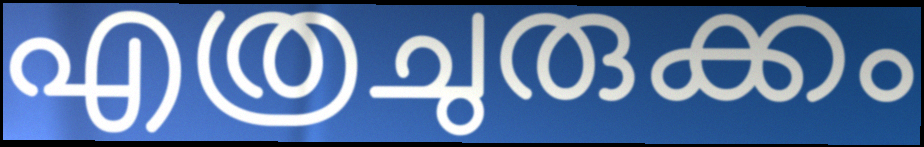
എത്രചുരുക്കം